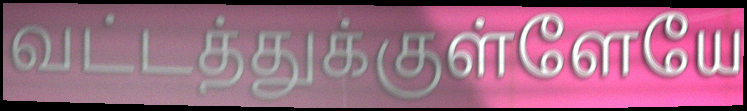
வட்டத்துக்குள்ளேயே